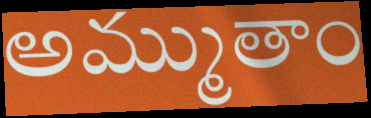
అమ్ముతాం